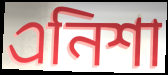
এনিশা